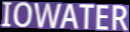
IOWATER